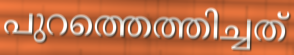
പുറത്തെത്തിച്ചത്